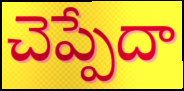
చెప్పేదా